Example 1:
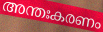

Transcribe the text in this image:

അന്തഃകരണം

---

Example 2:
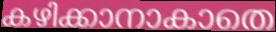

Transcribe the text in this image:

കഴിക്കാനാകാതെ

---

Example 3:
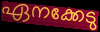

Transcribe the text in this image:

ഏനക്കേടു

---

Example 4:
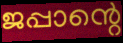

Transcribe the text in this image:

ജപ്പാന്റെ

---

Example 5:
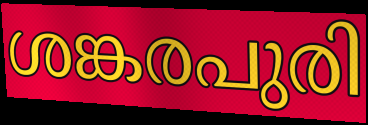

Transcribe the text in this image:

ശങ്കരപുരി